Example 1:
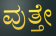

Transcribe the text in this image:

ವುತ್ತೇ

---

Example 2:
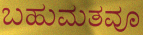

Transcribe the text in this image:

ಬಹುಮತವೂ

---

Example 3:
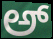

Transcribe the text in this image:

ಅ್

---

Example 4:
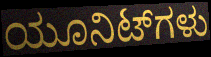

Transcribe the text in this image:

ಯೂನಿಟ್‌ಗಳು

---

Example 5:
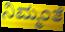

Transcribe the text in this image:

ನಿಮ್ಮಂತೆ